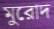
মুরোদ